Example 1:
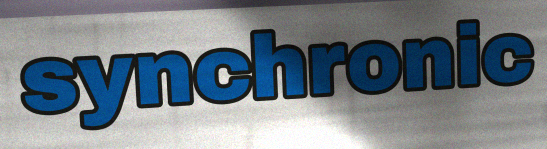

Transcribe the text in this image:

synchronic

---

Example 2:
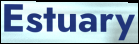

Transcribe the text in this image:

Estuary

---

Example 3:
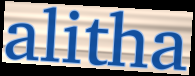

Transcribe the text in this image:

alitha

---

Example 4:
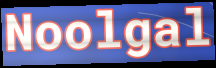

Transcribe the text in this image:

Noolgal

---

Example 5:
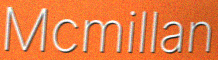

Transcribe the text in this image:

Mcmillan